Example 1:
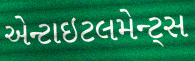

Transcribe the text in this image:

એન્ટાઇટલમેન્ટ્સ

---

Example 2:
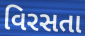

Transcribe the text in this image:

વિરસતા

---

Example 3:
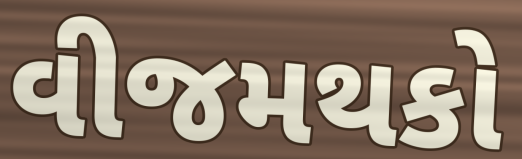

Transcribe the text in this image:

વીજમથકો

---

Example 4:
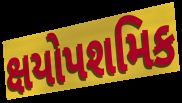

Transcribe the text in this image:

ક્ષયોપશમિક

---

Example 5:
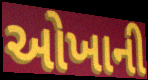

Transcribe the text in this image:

ઓખાની